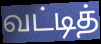
வட்டித்